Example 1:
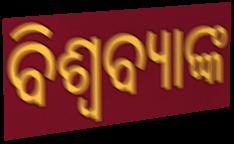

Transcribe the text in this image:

ବିଶ୍ୱବ୍ୟାଙ୍କ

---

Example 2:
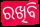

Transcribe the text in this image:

ରଖିବି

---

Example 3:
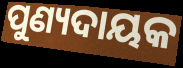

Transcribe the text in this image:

ପୁଣ୍ୟଦାୟକ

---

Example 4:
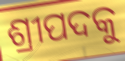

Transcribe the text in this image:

ଶ୍ରୀପଦକୁ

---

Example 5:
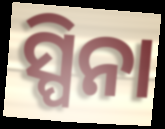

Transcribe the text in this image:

ସ୍ପିନା